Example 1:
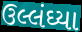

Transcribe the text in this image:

ઉલ્લંઘ્યા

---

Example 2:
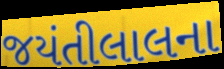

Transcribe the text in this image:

જયંતીલાલના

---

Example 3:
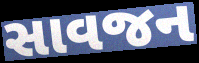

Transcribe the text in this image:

સાવજન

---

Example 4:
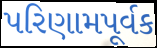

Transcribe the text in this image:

પરિણામપૂર્વક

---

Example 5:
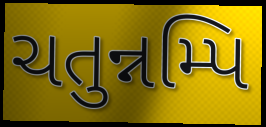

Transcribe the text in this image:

ચતુન્નમ્પિ